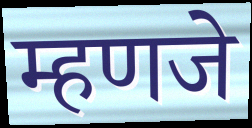
म्हणजे